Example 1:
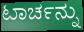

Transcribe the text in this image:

ಟಾರ್ಚನ್ನು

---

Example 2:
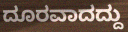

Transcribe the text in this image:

ದೂರವಾದದ್ದು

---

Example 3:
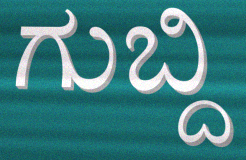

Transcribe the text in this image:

ಗುಬ್ದಿ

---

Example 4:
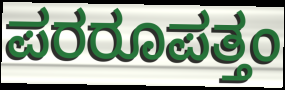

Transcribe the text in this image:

ಪರರೂಪತ್ತಂ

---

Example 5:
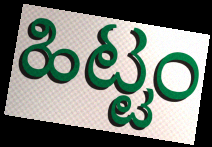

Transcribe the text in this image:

ಹಿಟ್ಟಂ